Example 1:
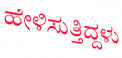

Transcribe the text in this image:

ಹೇಳಿಸುತ್ತಿದ್ದಳು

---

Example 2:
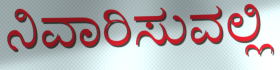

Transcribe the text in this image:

ನಿವಾರಿಸುವಲ್ಲಿ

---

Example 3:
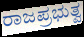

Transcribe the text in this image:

ರಾಜಪ್ರಭುತ್ವ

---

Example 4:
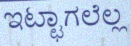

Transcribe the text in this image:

ಇಟ್ಟಾಗಲೆಲ್ಲ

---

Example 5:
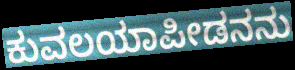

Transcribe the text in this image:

ಕುವಲಯಾಪೀಡನನು